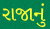
રાજાનું